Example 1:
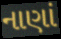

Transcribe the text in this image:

નાણાં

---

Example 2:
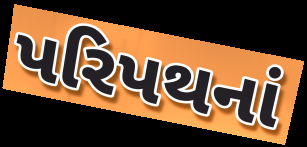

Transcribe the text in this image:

પરિપથનાં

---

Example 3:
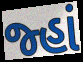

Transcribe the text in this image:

જ્હાં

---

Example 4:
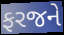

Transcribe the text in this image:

ફરજને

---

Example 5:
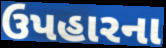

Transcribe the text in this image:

ઉપહારના